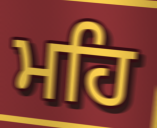
ਮਹਿ